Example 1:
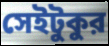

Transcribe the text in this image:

সেইটুকুর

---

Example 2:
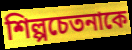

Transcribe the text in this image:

শিল্পচেতনাকে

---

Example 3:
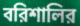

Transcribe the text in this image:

বরিশালির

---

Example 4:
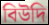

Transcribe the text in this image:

বিউদি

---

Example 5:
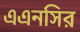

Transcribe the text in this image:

এএনসির